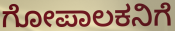
ಗೋಪಾಲಕನಿಗೆ